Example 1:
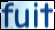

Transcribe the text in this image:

fuit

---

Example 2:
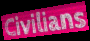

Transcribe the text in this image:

Civilians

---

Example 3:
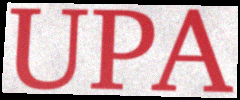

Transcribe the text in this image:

UPA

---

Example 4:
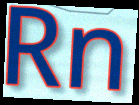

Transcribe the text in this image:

Rn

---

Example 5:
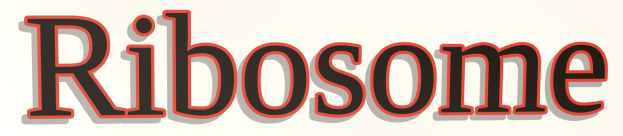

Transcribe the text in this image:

Ribosome